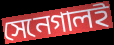
সেনেগালই